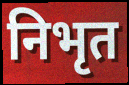
निभृत